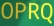
OPRQ